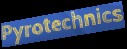
Pyrotechnics